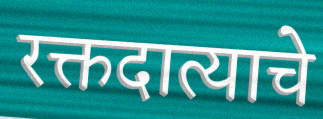
रक्तदात्याचे